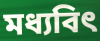
মধ্যবিৎ